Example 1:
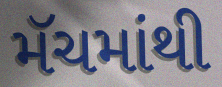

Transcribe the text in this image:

મૅચમાંથી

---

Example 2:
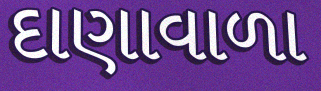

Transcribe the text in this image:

દાણાવાળા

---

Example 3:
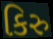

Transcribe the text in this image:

કિરુ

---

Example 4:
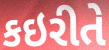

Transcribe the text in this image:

કઇરીતે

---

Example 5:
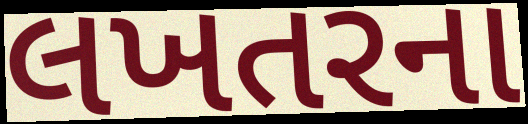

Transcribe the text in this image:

લખતરના